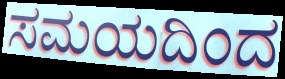
ಸಮಯದಿಂದ